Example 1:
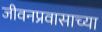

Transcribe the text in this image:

जीवनप्रवासाच्या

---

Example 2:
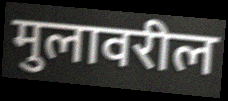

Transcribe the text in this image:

मुलावरील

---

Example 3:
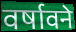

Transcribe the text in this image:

वर्षावने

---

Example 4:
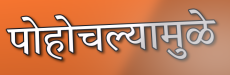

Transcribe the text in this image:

पोहोचल्यामुळे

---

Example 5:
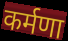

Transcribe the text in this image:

कर्मणा